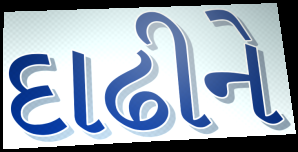
દાઢીને